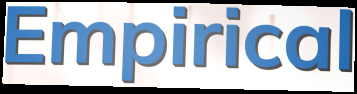
Empirical